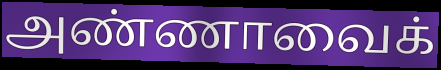
அண்ணாவைக்